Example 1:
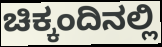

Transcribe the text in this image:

ಚಿಕ್ಕಂದಿನಲ್ಲಿ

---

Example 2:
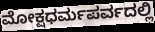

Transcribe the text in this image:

ಮೋಕ್ಷಧರ್ಮಪರ್ವದಲ್ಲಿ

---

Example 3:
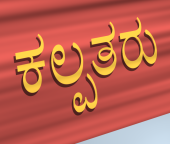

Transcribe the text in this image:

ಕಲ್ಪತರು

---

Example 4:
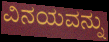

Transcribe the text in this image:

ವಿನಯವನ್ನು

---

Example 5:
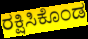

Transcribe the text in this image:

ರಕ್ಷಿಸಿಕೊಂಡ